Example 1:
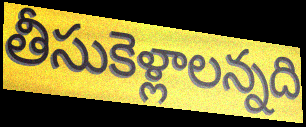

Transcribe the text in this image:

తీసుకెళ్లాలన్నది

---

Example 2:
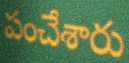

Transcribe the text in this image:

పంచేశారు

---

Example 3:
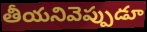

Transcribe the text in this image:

తీయనివెప్పుడూ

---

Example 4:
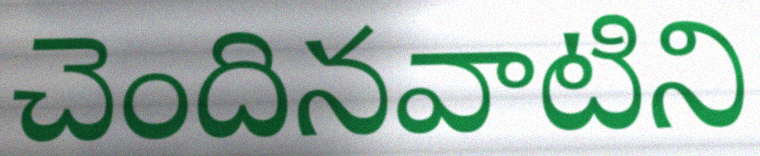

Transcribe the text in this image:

చెందినవాటిని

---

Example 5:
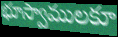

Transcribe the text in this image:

భూస్వాములకూ